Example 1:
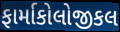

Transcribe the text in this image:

ફાર્માકોલોજીકલ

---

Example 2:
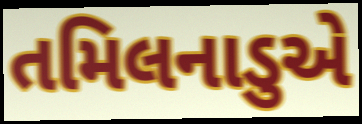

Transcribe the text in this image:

તમિલનાડુએ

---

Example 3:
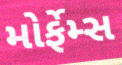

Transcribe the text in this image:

મોર્ફેમ્સ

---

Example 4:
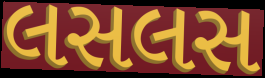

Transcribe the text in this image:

લસલસ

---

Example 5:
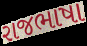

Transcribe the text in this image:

રાજભાષા